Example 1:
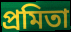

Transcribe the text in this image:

প্রমিতা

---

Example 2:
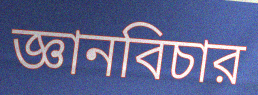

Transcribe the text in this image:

জ্ঞানবিচার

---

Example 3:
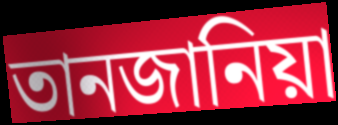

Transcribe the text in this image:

তানজানিয়া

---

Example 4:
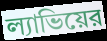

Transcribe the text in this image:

ল্যাভিয়ের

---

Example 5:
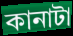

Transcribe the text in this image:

কানাটা